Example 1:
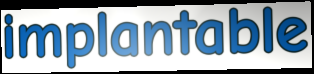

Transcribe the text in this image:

implantable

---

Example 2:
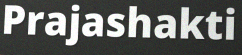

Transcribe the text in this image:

Prajashakti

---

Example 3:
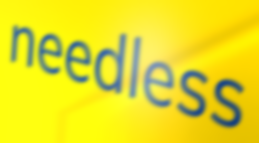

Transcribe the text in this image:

needless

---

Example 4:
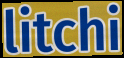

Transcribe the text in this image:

litchi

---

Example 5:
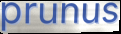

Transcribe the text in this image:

prunus